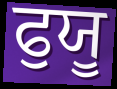
ਫੁਯੂ